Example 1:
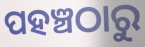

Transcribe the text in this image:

ପହଞ୍ଚଠାରୁ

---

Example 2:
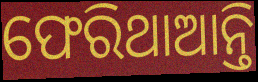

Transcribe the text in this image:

ଫେରିଥାଆନ୍ତି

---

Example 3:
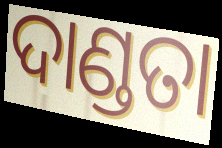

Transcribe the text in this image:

ଦାଣ୍ଡତା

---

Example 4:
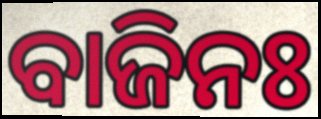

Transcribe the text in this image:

ବାଜିନଃ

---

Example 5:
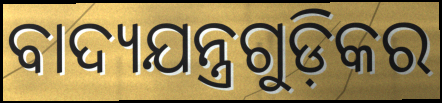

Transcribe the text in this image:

ବାଦ୍ୟଯନ୍ତ୍ରଗୁଡ଼ିକର